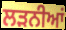
ਲੜਨੀਆਂ